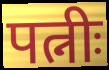
पत्नीः